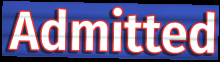
Admitted